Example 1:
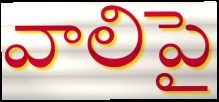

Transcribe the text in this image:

వాలిపై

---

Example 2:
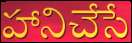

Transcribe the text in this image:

హానిచేసే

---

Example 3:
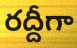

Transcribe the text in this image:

రద్దీగా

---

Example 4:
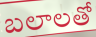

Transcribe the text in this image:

బలాలతో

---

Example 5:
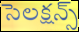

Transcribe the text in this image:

సెలక్షన్స్